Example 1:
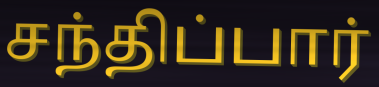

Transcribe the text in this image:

சந்திப்பார்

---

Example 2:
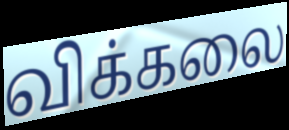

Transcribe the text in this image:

விக்கலை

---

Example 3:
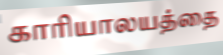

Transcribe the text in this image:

காரியாலயத்தை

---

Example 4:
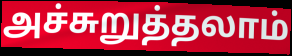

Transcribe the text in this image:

அச்சுறுத்தலாம்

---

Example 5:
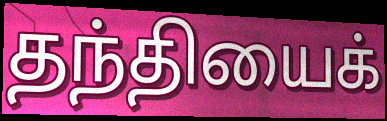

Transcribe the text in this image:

தந்தியைக்